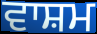
ਵਾਸ਼ਮ